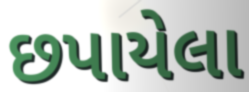
છપાયેલા